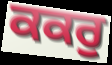
ਕਕਰੁ